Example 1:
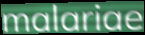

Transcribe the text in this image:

malariae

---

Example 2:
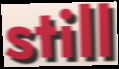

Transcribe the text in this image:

still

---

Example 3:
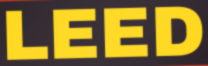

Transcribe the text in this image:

LEED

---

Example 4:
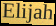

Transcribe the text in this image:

Elijah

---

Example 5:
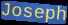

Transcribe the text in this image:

Joseph